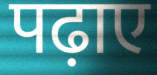
पढ़ाए